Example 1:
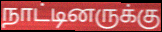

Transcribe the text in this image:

நாட்டினருக்கு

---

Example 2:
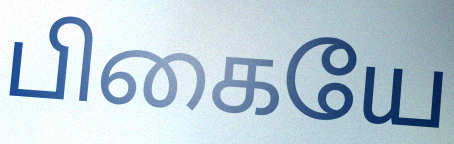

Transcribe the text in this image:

பிகையே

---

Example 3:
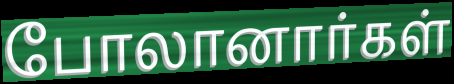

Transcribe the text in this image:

போலானார்கள்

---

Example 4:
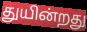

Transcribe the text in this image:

துயின்றது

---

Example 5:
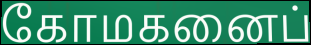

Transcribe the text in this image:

கோமகனைப்